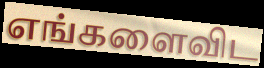
எங்களைவிட